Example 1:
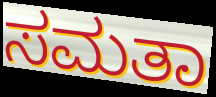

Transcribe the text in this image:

ಸಮತಾ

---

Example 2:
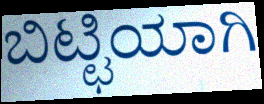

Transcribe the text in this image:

ಬಿಟ್ಟಿಯಾಗಿ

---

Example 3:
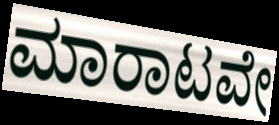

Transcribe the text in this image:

ಮಾರಾಟವೇ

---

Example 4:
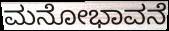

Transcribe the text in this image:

ಮನೋಭಾವನೆ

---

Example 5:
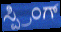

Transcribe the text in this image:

ಸ್ಪ್ರಿಂಗ್